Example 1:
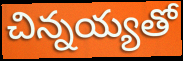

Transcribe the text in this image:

చిన్నయ్యతో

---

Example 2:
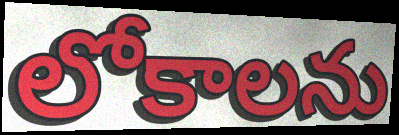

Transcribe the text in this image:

లోకాలను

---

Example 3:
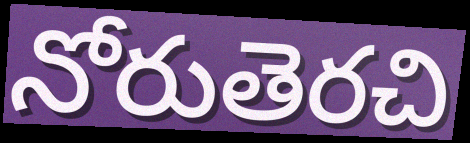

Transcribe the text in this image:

నోరుతెరచి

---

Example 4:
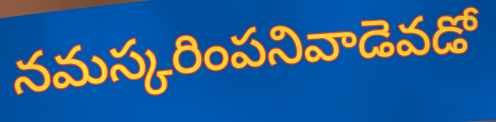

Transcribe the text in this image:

నమస్కరింపనివాడెవడో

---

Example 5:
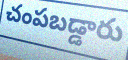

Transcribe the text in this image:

చంపబడ్డారు